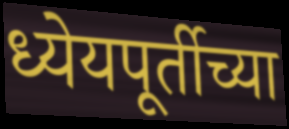
ध्येयपूर्तीच्या